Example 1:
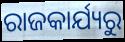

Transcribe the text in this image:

ରାଜକାର୍ଯ୍ୟରୁ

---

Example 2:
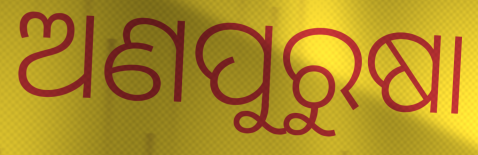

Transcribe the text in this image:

ଅଣପୁରୁଷା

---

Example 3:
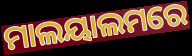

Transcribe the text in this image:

ମାଲୟାଲମରେ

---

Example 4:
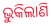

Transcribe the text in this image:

ଭୁକିଲାଣି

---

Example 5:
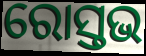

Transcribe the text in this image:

ରୋସ୍ତଭ